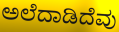
ಅಲೆದಾಡಿದೆವು